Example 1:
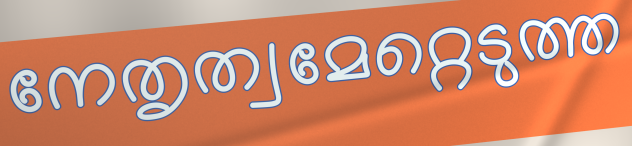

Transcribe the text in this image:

നേതൃത്വമേറ്റെടുത്ത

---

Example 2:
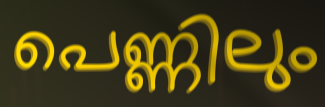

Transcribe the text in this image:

പെണ്ണിലും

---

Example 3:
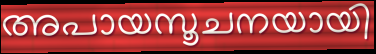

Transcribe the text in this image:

അപായസൂചനയായി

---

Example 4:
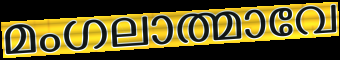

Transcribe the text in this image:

മംഗലാത്മാവേ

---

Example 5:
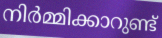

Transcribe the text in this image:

നിർമ്മിക്കാറുണ്ട്